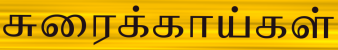
சுரைக்காய்கள்